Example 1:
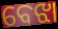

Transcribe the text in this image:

ବେଝା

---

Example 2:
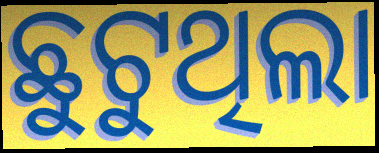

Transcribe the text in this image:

ଛୁଟୁଥିଲା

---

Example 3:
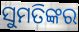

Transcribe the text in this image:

ସୁମତିଙ୍କର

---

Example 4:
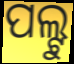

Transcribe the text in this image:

ପଲ୍ଟୁ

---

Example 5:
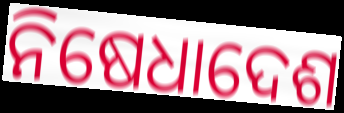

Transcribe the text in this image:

ନିଷେଧାଦେଶ